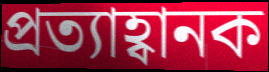
প্ৰত্যাহ্বানক